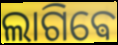
ଲାଗିଵେ